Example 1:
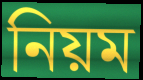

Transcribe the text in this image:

নিয়ম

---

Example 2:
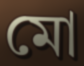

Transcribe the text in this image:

মো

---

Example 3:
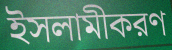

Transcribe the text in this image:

ইসলামীকরণ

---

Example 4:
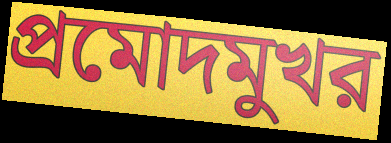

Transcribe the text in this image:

প্রমোদমুখর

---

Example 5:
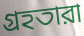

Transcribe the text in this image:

গ্রহতারা